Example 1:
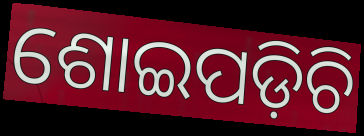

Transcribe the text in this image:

ଶୋଇପଡ଼ିଚି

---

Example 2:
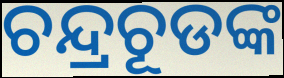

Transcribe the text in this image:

ଚନ୍ଦ୍ରଚୂଡଙ୍କ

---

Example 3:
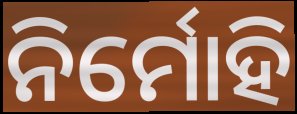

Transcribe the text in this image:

ନିର୍ମୋହି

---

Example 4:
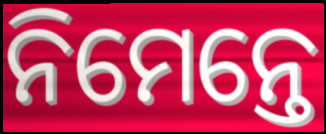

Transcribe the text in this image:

ନିମେନ୍ତେ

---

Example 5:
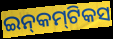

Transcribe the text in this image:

ଇନ୍‍କମ୍‍ଟିକସ